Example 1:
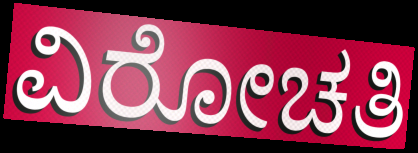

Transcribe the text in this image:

ವಿರೋಚತಿ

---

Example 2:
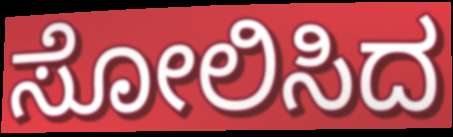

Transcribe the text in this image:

ಸೋಲಿಸಿದ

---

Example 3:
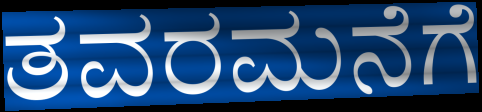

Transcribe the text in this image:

ತವರಮನೆಗೆ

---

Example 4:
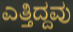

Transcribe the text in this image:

ಎತ್ತಿದ್ದವು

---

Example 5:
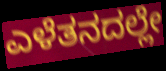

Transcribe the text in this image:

ಎಳೆತನದಲ್ಲೇ